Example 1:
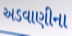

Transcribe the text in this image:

અડવાણીના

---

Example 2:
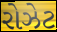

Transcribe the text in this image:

રોઝેટ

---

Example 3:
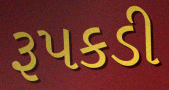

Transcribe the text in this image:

રૂપકડી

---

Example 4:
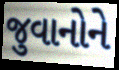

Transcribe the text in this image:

જુવાનોને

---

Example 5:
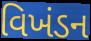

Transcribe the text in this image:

વિખંડન